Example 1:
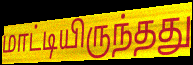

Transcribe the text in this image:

மாட்டியிருந்தது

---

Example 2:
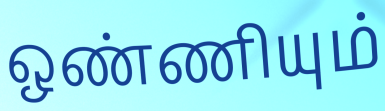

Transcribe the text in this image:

ஒண்ணியும்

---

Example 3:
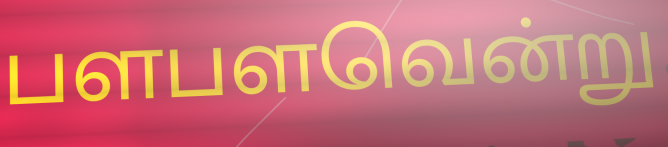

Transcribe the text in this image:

பளபளவென்று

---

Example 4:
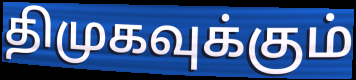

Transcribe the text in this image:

திமுகவுக்கும்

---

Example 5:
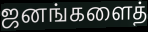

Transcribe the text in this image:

ஜனங்களைத்